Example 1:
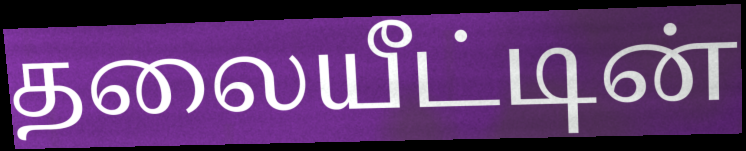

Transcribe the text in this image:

தலையீட்டின்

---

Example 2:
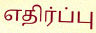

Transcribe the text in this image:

எதிர்ப்பு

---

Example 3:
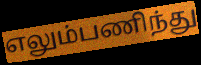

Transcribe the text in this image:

எலும்பணிந்து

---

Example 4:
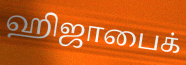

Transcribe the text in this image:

ஹிஜாபைக்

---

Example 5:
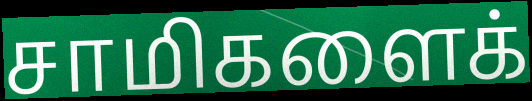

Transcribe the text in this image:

சாமிகளைக்